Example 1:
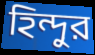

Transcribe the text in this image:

হিন্দুর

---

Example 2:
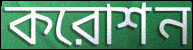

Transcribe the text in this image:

করোশন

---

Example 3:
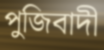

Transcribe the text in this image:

পুজিবাদী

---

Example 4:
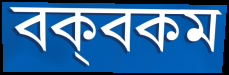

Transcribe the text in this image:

বক্‌বকম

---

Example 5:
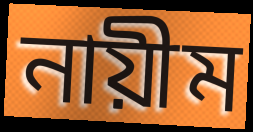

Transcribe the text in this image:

নায়ীম